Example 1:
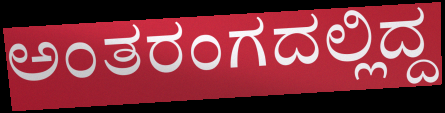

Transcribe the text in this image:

ಅಂತರಂಗದಲ್ಲಿದ್ದ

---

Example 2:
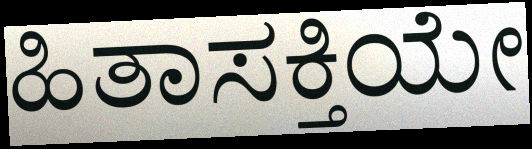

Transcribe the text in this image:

ಹಿತಾಸಕ್ತಿಯೇ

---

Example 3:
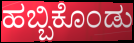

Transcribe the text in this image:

ಹಬ್ಬಿಕೊಂಡು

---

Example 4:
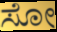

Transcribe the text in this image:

ಸೋ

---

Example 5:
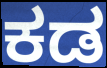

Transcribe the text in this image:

ಕಡ